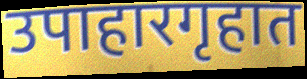
उपाहारगृहात